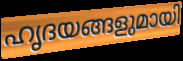
ഹൃദയങ്ങളുമായി